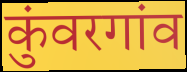
कुंवरगांव